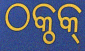
ଠକ୍ଠକ୍